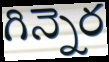
గిన్నెర